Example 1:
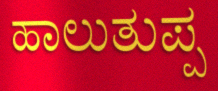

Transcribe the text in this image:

ಹಾಲುತುಪ್ಪ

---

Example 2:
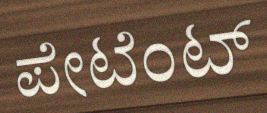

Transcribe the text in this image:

ಪೇಟೆಂಟ್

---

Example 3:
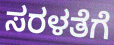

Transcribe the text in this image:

ಸರಳತೆಗೆ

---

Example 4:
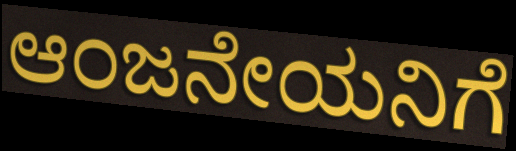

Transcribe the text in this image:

ಆಂಜನೇಯನಿಗೆ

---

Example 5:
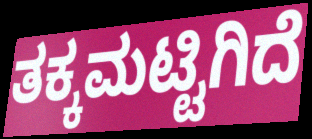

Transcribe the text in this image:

ತಕ್ಕಮಟ್ಟಿಗಿದೆ